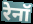
रेनॉ